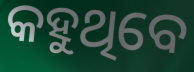
କହୁଥିବେ